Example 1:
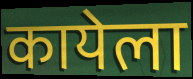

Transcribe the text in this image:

कायेला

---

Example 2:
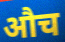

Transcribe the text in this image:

औच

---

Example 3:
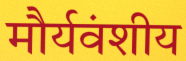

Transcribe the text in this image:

मौर्यवंशीय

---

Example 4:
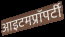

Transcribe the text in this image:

आइटमप्रॉपर्टी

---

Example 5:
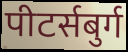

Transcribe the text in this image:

पीटर्सबुर्ग